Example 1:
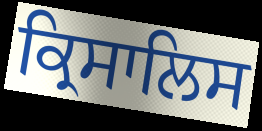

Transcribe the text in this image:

ਕ੍ਰਿਸਾਲਿਸ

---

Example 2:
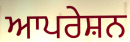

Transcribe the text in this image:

ਆਪਰੇਸ਼ਨ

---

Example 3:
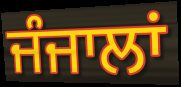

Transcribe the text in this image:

ਜੰਜਾਲਾਂ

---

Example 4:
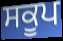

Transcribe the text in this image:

ਸਕੂਪ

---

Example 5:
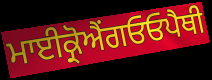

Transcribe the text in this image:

ਮਾਈਕ੍ਰੋਐਂਗਓਓਪੈਥੀ